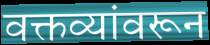
वक्तव्यांवरून